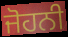
ਜੋਹਨੀ